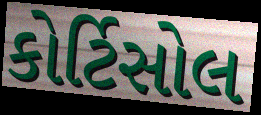
કોર્ટિસોલ